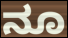
ನೂ